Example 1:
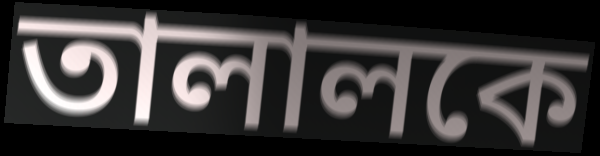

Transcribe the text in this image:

তালালকে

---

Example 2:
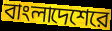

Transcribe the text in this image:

বাংলাদেশেরে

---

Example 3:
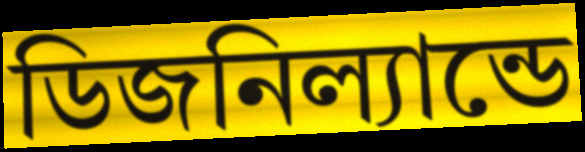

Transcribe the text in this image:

ডিজনিল্যান্ডে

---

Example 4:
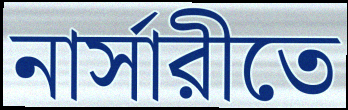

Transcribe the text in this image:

নার্সারীতে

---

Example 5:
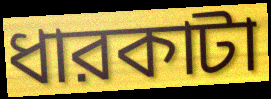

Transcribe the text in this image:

ধারকাটা